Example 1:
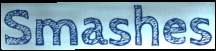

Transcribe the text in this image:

Smashes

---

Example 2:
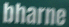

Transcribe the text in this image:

bharne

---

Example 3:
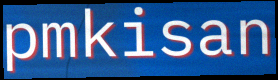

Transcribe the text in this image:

pmkisan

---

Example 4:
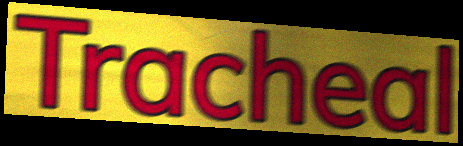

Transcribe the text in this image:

Tracheal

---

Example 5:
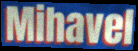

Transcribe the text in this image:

Mihavel